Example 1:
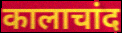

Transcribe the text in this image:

कालाचांद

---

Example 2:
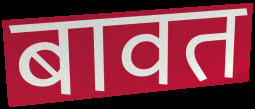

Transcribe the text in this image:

बावत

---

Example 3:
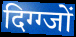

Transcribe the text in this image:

दिग्ग्जों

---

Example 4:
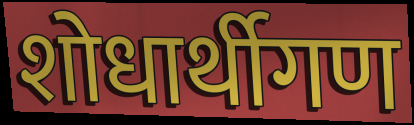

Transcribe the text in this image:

शोधार्थीगण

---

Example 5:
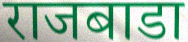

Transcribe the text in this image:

राजबाडा